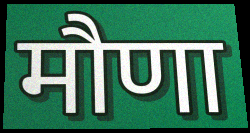
मौणा